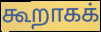
கூறாகக்